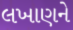
લખાણને